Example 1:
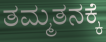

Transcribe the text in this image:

ತಮ್ಮತನಕ್ಕೆ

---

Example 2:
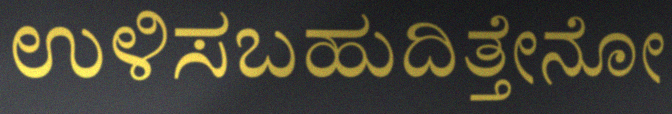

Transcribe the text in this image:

ಉಳಿಸಬಹುದಿತ್ತೇನೋ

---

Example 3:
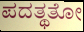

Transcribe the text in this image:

ಪದತ್ಥತೋ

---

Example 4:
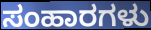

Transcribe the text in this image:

ಸಂಹಾರಗಳು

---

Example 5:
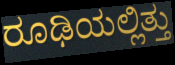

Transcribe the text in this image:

ರೂಢಿಯಲ್ಲಿತ್ತು